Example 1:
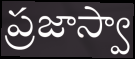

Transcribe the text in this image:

ప్రజాస్వా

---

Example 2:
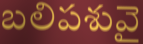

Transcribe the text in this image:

బలిపశువై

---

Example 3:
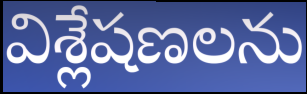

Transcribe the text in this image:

విశ్లేషణలను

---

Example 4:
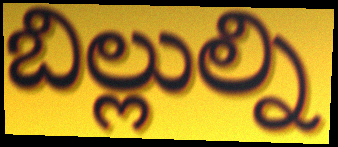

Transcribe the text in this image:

బిల్లుల్ని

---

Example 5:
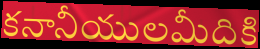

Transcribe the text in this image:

కనానీయులమీదికి